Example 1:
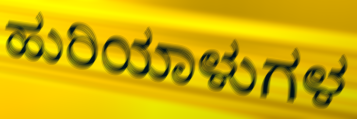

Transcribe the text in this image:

ಹುರಿಯಾಳುಗಳ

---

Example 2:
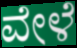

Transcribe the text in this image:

ವೇಳೆ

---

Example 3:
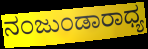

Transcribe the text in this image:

ನಂಜುಂಡಾರಾಧ್ಯ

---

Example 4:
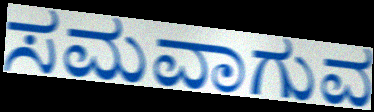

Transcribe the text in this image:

ಸಮವಾಗುವ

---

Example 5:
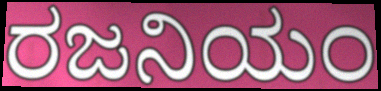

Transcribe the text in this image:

ರಜನಿಯಂ